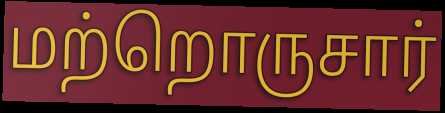
மற்றொருசார்